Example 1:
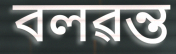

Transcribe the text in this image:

বলৱন্ত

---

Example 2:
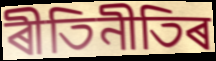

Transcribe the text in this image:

ৰীতিনীতিৰ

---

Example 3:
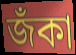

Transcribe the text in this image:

জঁকা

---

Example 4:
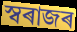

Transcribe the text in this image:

স্বৰাজৰ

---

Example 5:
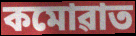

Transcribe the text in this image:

কমোৱাত